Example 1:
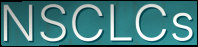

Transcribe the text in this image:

NSCLCs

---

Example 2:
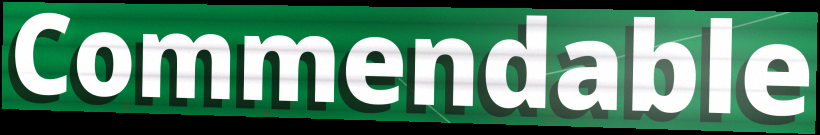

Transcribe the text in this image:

Commendable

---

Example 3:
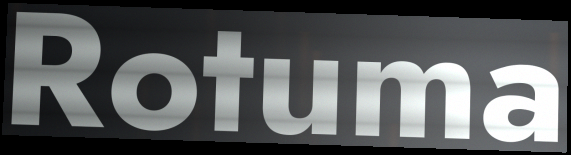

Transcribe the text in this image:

Rotuma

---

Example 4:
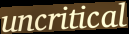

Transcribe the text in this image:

uncritical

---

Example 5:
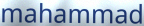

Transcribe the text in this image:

mahammad